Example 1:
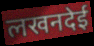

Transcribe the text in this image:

लखनदेई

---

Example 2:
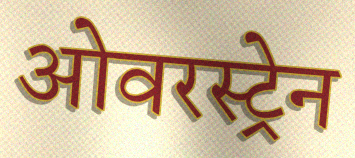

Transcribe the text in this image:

ओवरस्ट्रेन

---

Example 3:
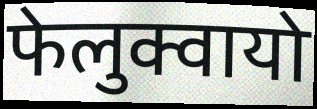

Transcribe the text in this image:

फेलुक्वायो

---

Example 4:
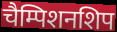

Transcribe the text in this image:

चैम्पिशनशिप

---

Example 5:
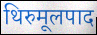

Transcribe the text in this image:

थिरुमूलपाद